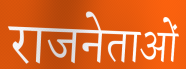
राजनेताओं